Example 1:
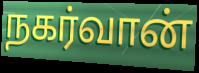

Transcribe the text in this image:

நகர்வான்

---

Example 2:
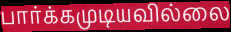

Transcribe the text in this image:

பார்க்கமுடியவில்லை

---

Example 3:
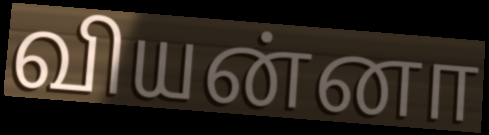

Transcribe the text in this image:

வியன்னா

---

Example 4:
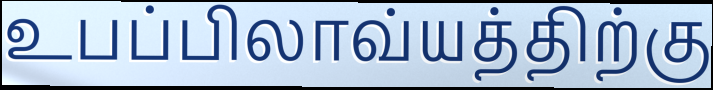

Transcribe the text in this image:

உபப்பிலாவ்யத்திற்கு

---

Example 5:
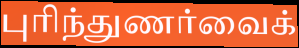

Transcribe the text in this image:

புரிந்துணர்வைக்